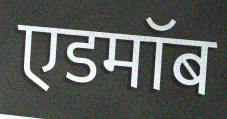
एडमॉब